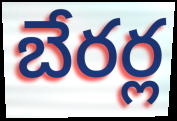
బేరర్ల